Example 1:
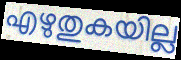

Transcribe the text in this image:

എഴുതുകയില്ല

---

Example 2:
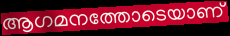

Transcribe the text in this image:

ആഗമനത്തോടെയാണ്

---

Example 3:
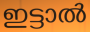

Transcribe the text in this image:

ഇട്ടാൽ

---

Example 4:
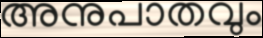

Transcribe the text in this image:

അനുപാതവും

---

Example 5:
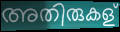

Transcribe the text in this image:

അതിരുകള്